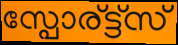
സ്പോര്ട്ട്സ്